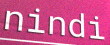
nindi